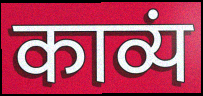
काव्यं